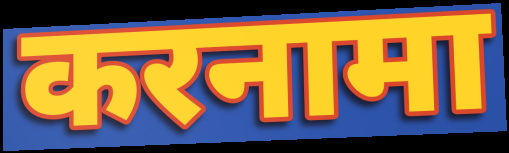
करनामा